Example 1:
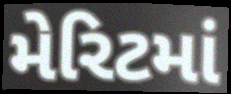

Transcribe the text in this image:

મેરિટમાં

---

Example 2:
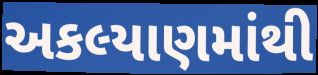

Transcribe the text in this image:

અકલ્યાણમાંથી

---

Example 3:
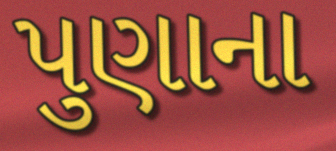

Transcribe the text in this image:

પુણાના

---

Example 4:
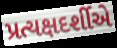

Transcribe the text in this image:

પ્રત્યક્ષદર્શીએ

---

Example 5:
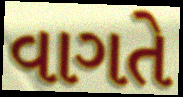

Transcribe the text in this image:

વાગતે